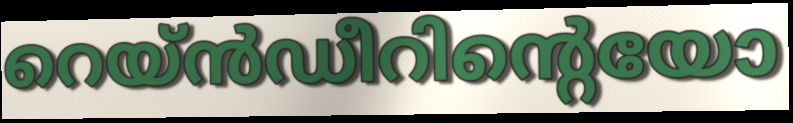
റെയ്ൻഡീറിന്റെയോ